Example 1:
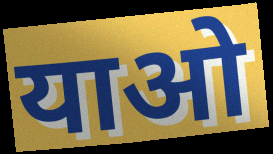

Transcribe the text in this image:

याओ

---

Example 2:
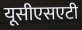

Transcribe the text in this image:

यूसीएसएटी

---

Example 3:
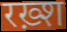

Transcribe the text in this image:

रख़्श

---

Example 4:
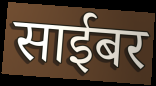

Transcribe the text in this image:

साईबर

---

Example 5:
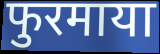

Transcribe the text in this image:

फुरमाया